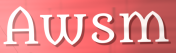
Awsm